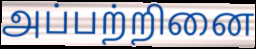
அப்பற்றினை